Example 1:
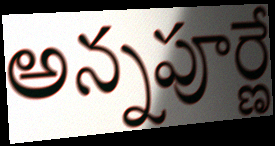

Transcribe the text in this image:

అన్నపూర్ణే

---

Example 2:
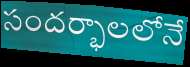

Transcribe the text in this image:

సందర్భాలలోనే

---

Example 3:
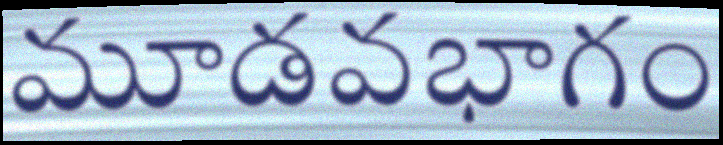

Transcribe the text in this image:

మూడవభాగం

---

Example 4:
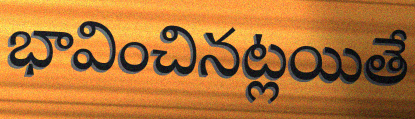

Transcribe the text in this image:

భావించినట్లయితే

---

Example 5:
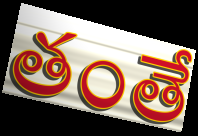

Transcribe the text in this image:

తంతే